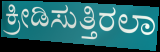
ಕ್ರೀಡಿಸುತ್ತಿರಲಾ